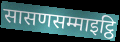
सासणसम्माइट्ठि